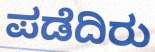
ಪಡೆದಿರು